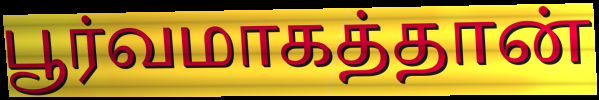
பூர்வமாகத்தான்